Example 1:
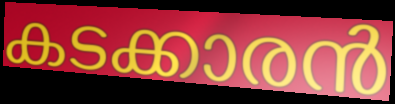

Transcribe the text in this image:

കടക്കാരൻ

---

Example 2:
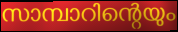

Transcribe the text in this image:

സാമ്പാറിന്റെയും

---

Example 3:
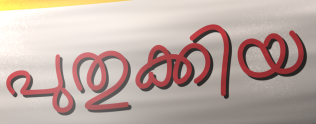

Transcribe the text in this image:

പുതുക്കിയ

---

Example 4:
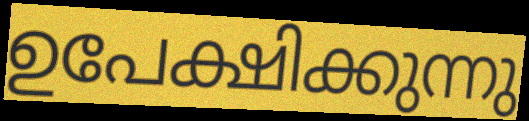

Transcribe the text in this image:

ഉപേക്ഷിക്കുന്നു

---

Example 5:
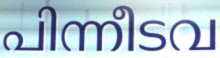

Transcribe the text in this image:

പിന്നീടവ